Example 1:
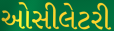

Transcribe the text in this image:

ઓસીલેટરી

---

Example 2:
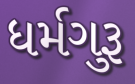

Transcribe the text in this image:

ધર્મગુરૂ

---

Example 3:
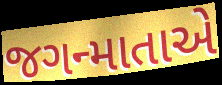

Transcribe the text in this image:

જગન્માતાએ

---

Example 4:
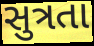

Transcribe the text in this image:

સુત્રતા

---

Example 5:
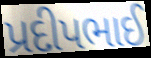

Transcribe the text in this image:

પ્રદીપભાઈ